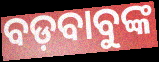
ବଡ଼ବାବୁଙ୍କ